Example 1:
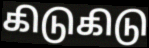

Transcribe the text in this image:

கிடுகிடு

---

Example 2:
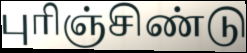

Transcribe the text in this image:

புரிஞ்சிண்டு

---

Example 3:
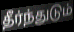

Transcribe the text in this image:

தீர்ந்துடும்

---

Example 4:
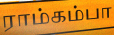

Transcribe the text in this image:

ராம்கம்பா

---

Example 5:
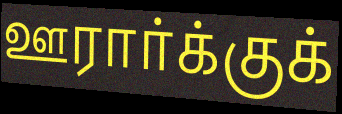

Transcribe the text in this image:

ஊரார்க்குக்